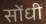
सोंधी